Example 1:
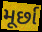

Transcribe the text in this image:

મૂર્છા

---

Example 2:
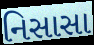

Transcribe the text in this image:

નિસાસા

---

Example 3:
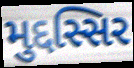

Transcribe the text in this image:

મુદ્દસ્સિર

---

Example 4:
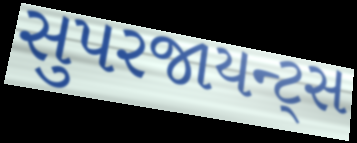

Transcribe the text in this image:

સુપરજાયન્ટ્સ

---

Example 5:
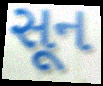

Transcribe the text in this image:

સૂન